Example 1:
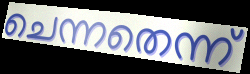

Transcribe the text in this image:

ചെന്നതെന്ന്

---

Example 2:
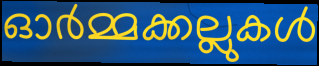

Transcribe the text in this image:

ഓർമ്മക്കല്ലുകൾ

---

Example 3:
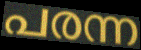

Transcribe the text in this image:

പരന്ന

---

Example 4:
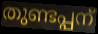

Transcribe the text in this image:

തുണ്ടപ്പന്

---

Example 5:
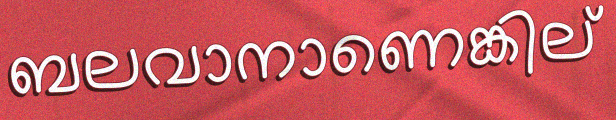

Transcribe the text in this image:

ബലവാനാണെങ്കില്